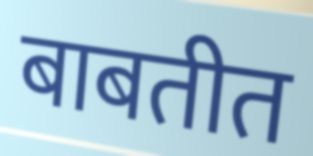
बाबतीत